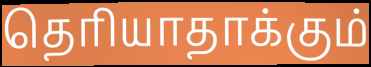
தெரியாதாக்கும்